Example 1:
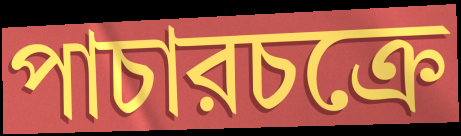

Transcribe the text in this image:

পাচারচক্রে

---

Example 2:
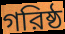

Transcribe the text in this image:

গরিষ্ঠ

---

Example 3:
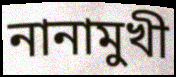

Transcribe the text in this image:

নানামুখী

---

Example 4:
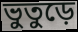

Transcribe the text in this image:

ভুতুড়ে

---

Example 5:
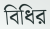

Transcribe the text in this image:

বিধির